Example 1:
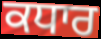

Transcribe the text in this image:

ਕਧਾਰ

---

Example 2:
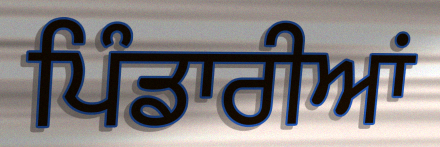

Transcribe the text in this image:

ਪਿੰਡਾਰੀਆਂ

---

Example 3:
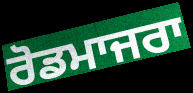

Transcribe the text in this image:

ਰੋਡਮਾਜਰਾ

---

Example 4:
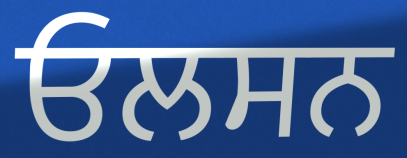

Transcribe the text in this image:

ਓਲਸਨ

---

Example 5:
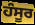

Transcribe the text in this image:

ਹੰਸੂਰ